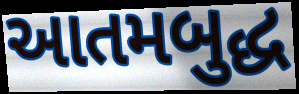
આતમબુદ્ધ